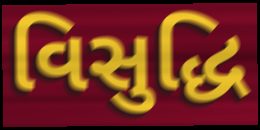
વિસુદ્ધિ